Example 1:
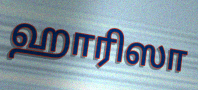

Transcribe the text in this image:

ஹாரிஸா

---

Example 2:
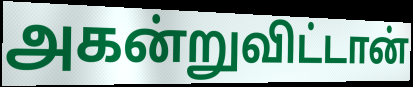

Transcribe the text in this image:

அகன்றுவிட்டான்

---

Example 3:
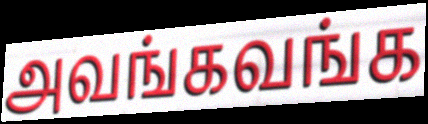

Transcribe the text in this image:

அவங்கவங்க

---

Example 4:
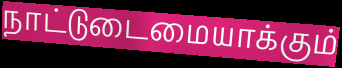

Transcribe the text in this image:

நாட்டுடைமையாக்கும்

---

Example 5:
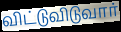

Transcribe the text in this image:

விட்டுவிடுவார்